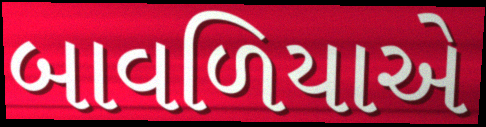
બાવળિયાએ